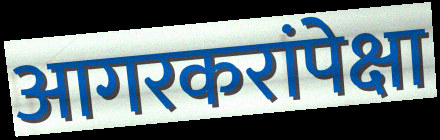
आगरकरांपेक्षा